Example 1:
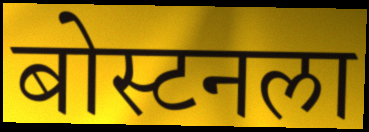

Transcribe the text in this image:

बोस्टनला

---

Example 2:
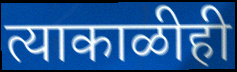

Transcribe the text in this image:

त्याकाळीही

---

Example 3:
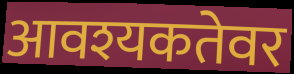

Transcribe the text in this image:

आवश्यकतेवर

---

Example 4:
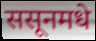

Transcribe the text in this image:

ससूनमधे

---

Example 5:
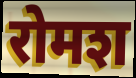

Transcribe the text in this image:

रोमश